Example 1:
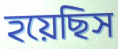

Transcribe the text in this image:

হয়েছিস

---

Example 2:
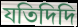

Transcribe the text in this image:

যতিদিদি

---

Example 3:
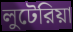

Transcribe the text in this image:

লুটেরিয়া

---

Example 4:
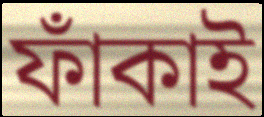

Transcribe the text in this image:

ফাঁকাই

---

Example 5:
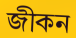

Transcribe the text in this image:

জীকন